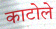
काटोले